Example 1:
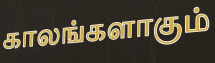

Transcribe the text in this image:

காலங்களாகும்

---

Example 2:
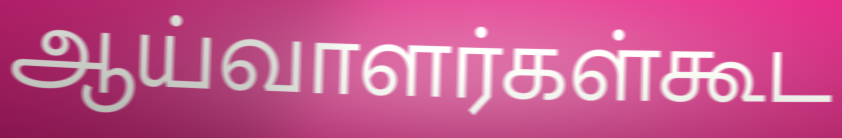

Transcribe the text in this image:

ஆய்வாளர்கள்கூட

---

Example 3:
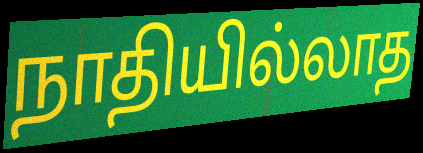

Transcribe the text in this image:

நாதியில்லாத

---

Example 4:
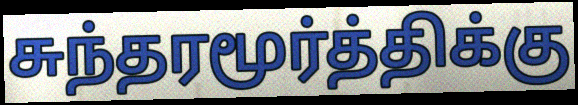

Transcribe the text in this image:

சுந்தரமூர்த்திக்கு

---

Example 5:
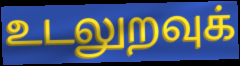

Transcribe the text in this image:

உடலுறவுக்